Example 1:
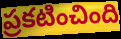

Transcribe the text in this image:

ప్రకటించింది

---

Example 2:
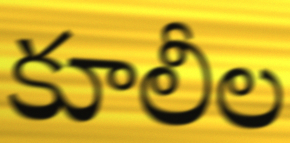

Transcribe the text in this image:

కూలీల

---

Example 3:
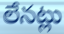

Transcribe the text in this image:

లేనట్లు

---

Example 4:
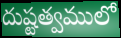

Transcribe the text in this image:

దుష్టత్వములో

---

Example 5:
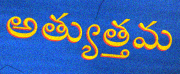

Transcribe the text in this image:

అత్యుత్తమ